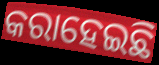
କରାହେଇଛି